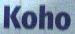
Koho